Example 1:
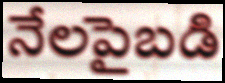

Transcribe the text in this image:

నేలపైబడి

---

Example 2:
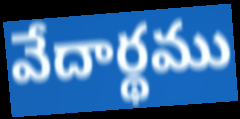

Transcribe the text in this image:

వేదార్థము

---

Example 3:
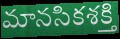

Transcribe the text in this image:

మానసికశక్తి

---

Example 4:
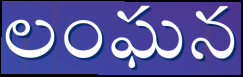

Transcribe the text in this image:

లంఘన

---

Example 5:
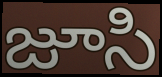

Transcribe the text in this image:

జూసి